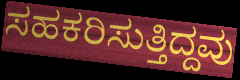
ಸಹಕರಿಸುತ್ತಿದ್ದವು